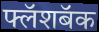
फ्लॅशबॅक